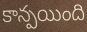
కాన్పయింది